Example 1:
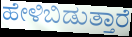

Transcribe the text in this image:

ಹೇಳಿಬಿಡುತ್ತಾರೆ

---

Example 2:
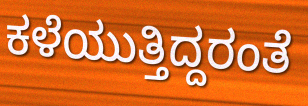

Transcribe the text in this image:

ಕಳೆಯುತ್ತಿದ್ದರಂತೆ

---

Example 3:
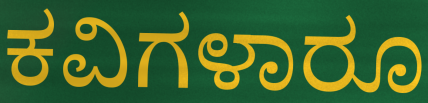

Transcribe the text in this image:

ಕವಿಗಳಾರೂ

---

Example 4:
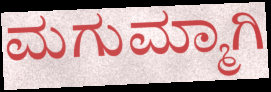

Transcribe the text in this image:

ಮಗುಮ್ಮಾಗಿ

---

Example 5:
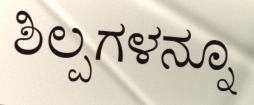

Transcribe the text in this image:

ಶಿಲ್ಪಗಳನ್ನೂ